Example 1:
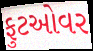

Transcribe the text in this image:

ફુટઓવર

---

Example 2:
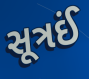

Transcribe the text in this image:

સૂત્રઈં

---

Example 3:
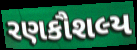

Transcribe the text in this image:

રણકૌશલ્ય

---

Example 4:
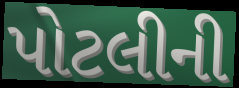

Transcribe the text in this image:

પોટલીની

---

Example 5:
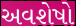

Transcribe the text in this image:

અવશેષો